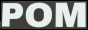
POM